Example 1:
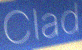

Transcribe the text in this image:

Clad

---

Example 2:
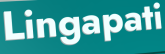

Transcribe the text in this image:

Lingapati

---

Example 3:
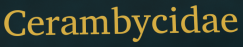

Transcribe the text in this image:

Cerambycidae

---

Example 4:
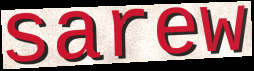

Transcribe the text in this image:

sarew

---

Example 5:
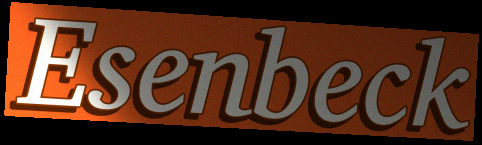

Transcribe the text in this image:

Esenbeck